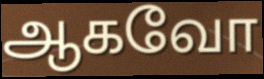
ஆகவோ